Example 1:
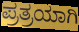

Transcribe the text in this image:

ಪ್ರತ್ರಯಾಗಿ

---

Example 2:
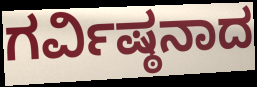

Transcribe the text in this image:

ಗರ್ವಿಷ್ಠನಾದ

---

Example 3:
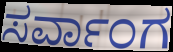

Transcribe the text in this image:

ಸರ್ವಾಂಗ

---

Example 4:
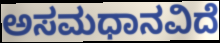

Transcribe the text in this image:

ಅಸಮಧಾನವಿದೆ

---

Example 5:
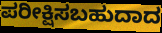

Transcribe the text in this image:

ಪರೀಕ್ಷಿಸಬಹುದಾದ